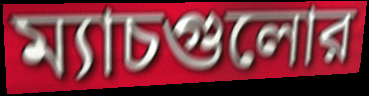
ম্যাচগুলোর